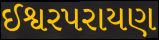
ઈશ્વરપરાયણ